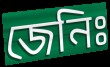
জেনিঃ